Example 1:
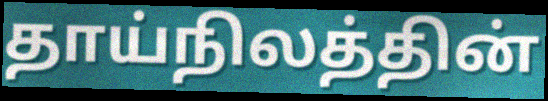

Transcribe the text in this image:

தாய்நிலத்தின்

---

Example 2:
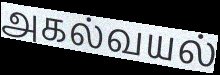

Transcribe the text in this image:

அகல்வயல்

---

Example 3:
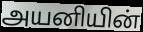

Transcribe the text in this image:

அயனியின்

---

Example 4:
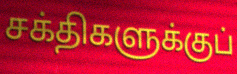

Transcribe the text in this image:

சக்திகளுக்குப்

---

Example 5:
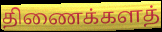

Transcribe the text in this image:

திணைக்களத்